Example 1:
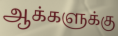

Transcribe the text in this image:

ஆக்களுக்கு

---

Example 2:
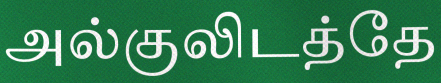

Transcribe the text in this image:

அல்குலிடத்தே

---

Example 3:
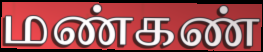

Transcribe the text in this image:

மண்கண்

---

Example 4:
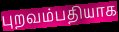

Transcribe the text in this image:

புறவம்பதியாக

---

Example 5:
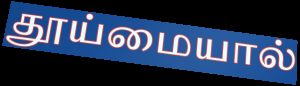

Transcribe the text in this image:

தூய்மையால்